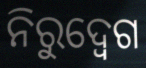
ନିରୁଦ୍ବେଗ